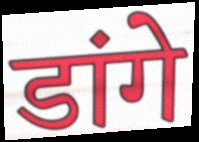
डांगे